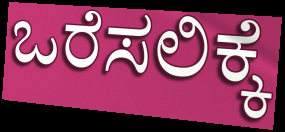
ಒರೆಸಲಿಕ್ಕೆ